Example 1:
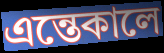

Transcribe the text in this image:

এন্তেকালে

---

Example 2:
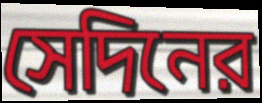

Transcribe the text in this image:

সেদিনের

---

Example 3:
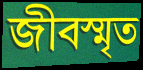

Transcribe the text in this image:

জীবস্মৃত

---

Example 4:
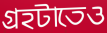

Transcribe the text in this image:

গ্রহটাতেও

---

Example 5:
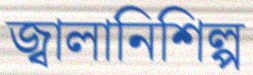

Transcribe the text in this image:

জ্বালানিশিল্প